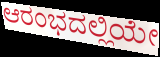
ಆರಂಭದಲ್ಲಿಯೇ